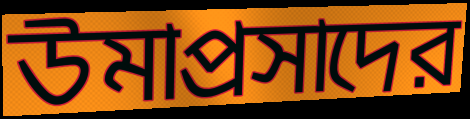
উমাপ্রসাদের